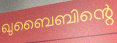
ഖുബൈബിന്റെ